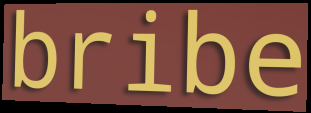
bribe